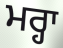
ਮਰ੍ਹਾ